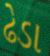
ઢેડા